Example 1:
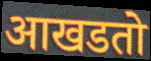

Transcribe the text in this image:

आखडतो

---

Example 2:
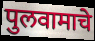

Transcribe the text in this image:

पुलवामाचे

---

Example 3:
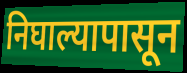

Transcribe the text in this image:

निघाल्यापासून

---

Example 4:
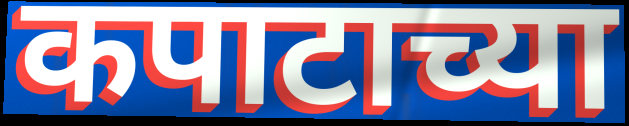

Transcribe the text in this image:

कपाटाच्या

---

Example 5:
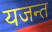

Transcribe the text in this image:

यजन्त